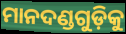
ମାନଦଣ୍ଡଗୁଡ଼ିକୁ